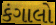
કંગાલો